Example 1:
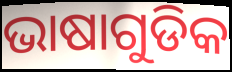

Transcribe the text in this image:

ଭାଷାଗୁଡିକ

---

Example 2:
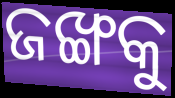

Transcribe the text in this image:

ଜଙ୍ଖକୁ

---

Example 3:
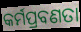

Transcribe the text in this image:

କର୍ମପ୍ରବଣତା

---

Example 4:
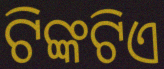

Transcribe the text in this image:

ଟିଙ୍କଟିଏ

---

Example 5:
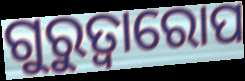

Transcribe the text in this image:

ଗୁରୁତ୍ବାରୋପ